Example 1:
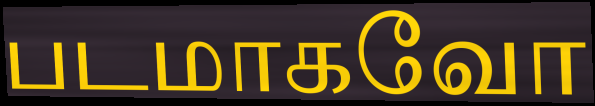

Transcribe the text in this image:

படமாகவோ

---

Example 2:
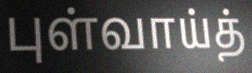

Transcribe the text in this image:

புள்வாய்த்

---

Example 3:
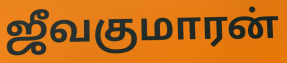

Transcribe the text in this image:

ஜீவகுமாரன்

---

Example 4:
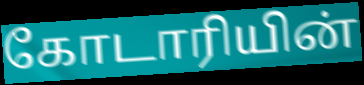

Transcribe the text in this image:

கோடாரியின்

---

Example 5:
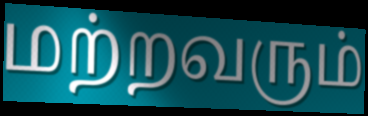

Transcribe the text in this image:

மற்றவரும்